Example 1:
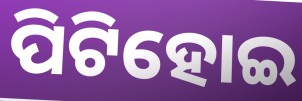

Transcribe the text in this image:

ପିଟିହୋଇ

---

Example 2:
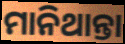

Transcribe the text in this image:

ମାନିଥାନ୍ତା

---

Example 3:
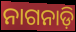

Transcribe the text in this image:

ନାଗନାଡ଼ି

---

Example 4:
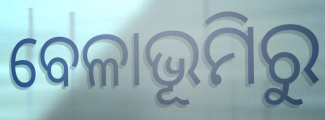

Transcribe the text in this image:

ବେଳାଭୂମିରୁ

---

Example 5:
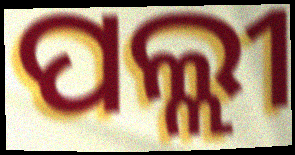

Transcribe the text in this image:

ପଲ୍ଲୀ